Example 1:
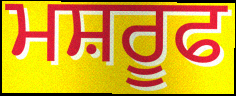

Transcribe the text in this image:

ਮਸ਼ਰੂਫ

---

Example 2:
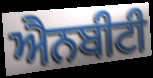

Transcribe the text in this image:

ਐਨਬੀਟੀ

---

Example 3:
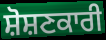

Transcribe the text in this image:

ਸ਼ੋਸ਼ਣਕਾਰੀ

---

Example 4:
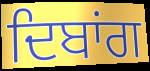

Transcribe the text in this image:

ਦਿਬਾਂਗ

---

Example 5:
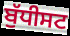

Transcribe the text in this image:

ਬੁੱਧੀਸਟ